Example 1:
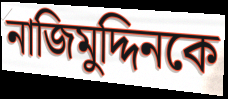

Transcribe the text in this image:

নাজিমুদ্দিনকে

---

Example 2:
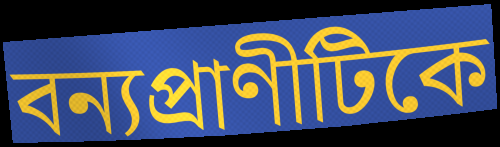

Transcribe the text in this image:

বন্যপ্রাণীটিকে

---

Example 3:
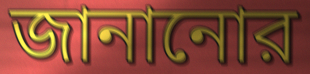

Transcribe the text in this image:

জানানোর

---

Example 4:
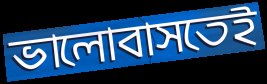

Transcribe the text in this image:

ভালোবাসতেই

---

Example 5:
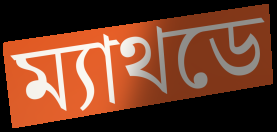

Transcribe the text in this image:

ম্যাথডে